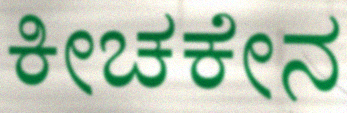
ಕೀಚಕೇನ